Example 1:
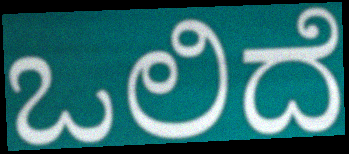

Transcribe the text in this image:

ಒಲಿದೆ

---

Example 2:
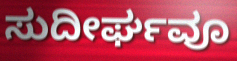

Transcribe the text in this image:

ಸುದೀರ್ಘವೂ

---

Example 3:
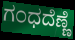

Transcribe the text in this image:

ಗಂಧದೆಣ್ಣೆ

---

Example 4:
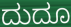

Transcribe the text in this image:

ದುದೂ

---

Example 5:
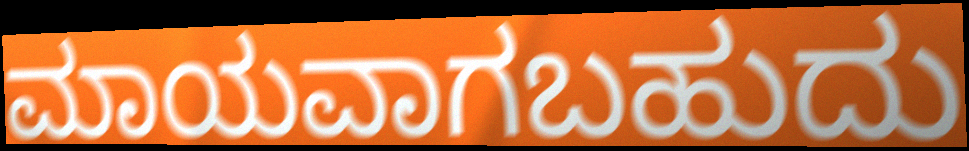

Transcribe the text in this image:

ಮಾಯವಾಗಬಹುದು